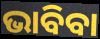
ଭାବିବା